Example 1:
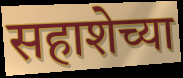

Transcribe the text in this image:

सहाशेच्या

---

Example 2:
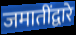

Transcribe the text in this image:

जमातींद्वारे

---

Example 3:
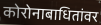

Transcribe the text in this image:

कोरोनाबाधितांवर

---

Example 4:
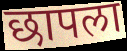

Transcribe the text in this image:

छापला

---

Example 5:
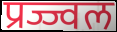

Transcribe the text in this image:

प्रज्ज्वल